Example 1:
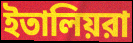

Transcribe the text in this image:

ইতালিয়রা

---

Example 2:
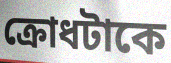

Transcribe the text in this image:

ক্রোধটাকে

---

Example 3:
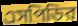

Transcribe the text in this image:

এসপিডির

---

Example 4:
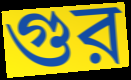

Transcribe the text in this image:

গুর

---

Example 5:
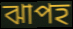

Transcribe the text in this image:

ঝাপহ